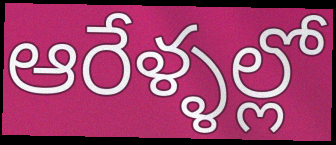
ఆరేళ్ళల్లో